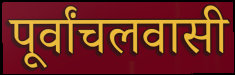
पूर्वांचलवासी